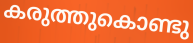
കരുത്തുകൊണ്ടു